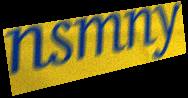
nsmny